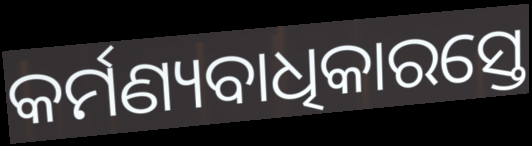
କର୍ମଣ୍ୟବାଧିକାରସ୍ତେ